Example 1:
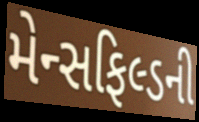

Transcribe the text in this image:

મેન્સફિલ્ડની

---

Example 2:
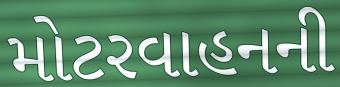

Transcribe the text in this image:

મોટરવાહનની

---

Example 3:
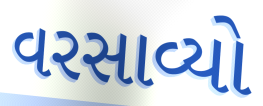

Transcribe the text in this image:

વરસાવ્યો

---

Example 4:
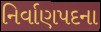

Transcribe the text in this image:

નિર્વાણપદના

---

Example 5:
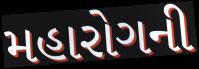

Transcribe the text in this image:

મહારોગની